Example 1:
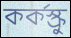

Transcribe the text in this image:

কর্কস্ক্রু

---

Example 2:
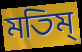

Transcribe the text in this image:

মতিম্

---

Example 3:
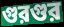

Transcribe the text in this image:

গুরগুর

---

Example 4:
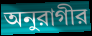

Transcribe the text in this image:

অনুরাগীর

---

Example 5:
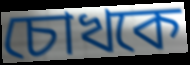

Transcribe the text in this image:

চোখকে